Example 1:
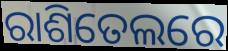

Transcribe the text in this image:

ରାଶିତେଲରେ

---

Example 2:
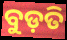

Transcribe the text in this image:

ବୁଡ଼ତି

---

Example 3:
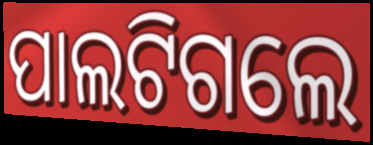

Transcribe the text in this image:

ପାଲଟିଗଲେ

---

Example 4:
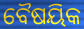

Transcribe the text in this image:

ବୈଷୟିକ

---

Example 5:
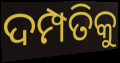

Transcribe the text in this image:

ଦମ୍ପତିକୁ